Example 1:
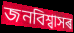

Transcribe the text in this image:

জনবিশ্বাসৰ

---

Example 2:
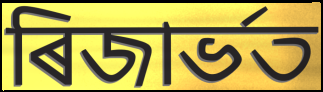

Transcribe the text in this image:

ৰিজাৰ্ভত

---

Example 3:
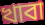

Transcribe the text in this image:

খাবা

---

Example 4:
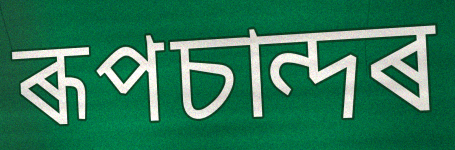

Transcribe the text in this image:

ৰূপচান্দৰ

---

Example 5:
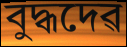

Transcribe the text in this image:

বুদ্ধদেৱ